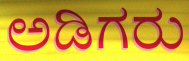
ಅಡಿಗರು